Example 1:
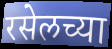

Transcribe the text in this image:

रसेलच्या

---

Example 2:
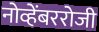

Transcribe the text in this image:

नोव्हेंबररोजी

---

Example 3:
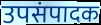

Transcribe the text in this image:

उपसंपादक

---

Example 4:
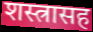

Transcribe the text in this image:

शस्त्रासह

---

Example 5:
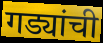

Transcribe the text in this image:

गड्यांची